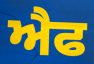
ਐਫ